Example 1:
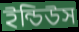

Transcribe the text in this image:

ইন্ডিউস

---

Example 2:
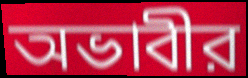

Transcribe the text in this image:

অভাবীর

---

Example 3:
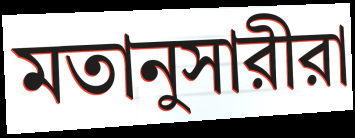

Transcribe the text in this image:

মতানুসারীরা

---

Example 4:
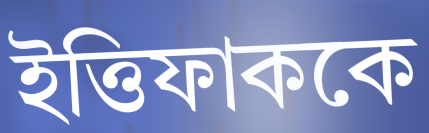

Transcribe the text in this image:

ইত্তিফাককে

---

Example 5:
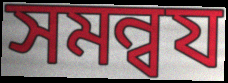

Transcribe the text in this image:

সমন্বয